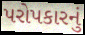
પરોપકારનું